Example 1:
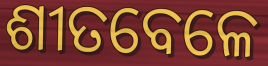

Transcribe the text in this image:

ଶୀତବେଳେ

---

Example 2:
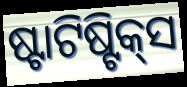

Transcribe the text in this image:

ଷ୍ଟାଟିଷ୍ଟିକ୍‍ସ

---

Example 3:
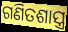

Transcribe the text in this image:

ଗଣିତଶାସ୍ତ୍ର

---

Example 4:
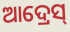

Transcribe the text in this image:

ଆଦ୍ରେସ୍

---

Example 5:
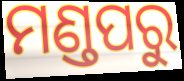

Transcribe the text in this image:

ମଣ୍ଡପରୁ